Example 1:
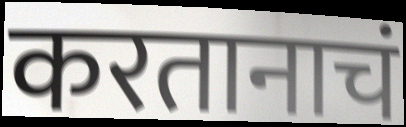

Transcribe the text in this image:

करतानाचं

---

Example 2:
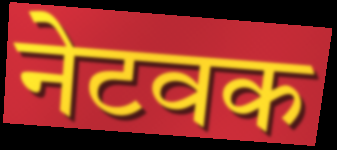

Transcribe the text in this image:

नेटवक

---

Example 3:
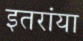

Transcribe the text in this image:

इतरांया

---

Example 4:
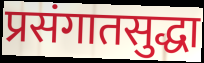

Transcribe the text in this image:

प्रसंगातसुद्धा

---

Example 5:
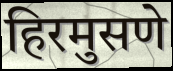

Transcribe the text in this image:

हिरमुसणे